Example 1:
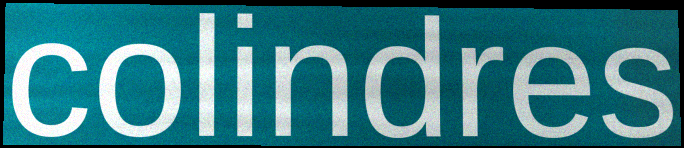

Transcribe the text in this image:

colindres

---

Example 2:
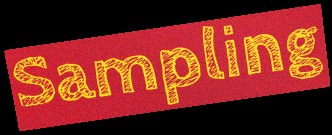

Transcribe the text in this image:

Sampling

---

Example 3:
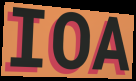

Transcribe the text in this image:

IOA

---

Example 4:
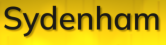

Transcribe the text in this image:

Sydenham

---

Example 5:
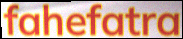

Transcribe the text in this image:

fahefatra